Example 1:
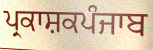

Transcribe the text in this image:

ਪ੍ਰਕਾਸ਼ਕਪੰਜਾਬ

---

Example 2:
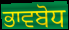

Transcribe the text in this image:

ਭਾਵਬੋਧ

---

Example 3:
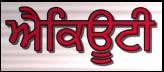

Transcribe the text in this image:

ਐਕਿਊਟੀ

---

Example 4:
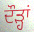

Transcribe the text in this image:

ਦੌੜ੍ਹਾਂ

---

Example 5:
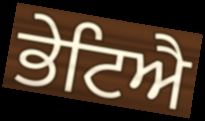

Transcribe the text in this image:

ਭੇਟਿਐ